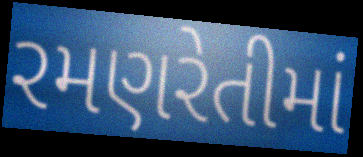
રમણરેતીમાં